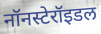
नॉनस्टेरॉइडल